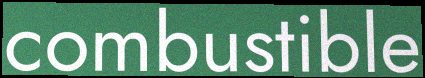
combustible